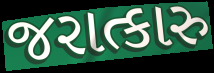
જરાત્કારુ